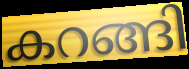
കറങ്ങി